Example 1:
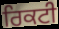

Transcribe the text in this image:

ਰਿਕਟੀ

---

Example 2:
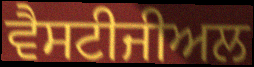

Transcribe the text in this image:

ਵੈਸਟੀਜੀਅਲ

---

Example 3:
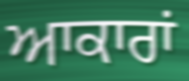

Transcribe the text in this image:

ਆਕਾਰਾਂ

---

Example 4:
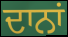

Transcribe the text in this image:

ਦਾਨਾਂ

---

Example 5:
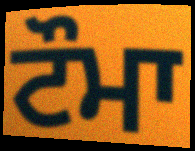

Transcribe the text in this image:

ਟੌਮਾ